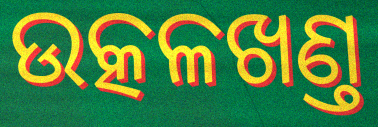
ଉତ୍କଳଖଣ୍ତ